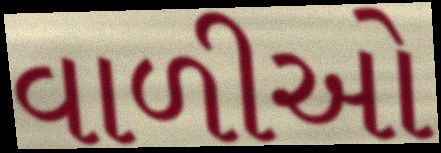
વાળીઓ